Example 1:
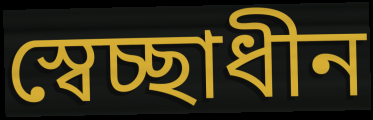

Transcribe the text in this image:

স্বেচ্ছাধীন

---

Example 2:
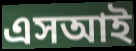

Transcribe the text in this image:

এসআই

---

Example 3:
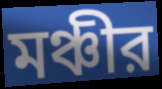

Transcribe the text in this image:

মঞ্চীর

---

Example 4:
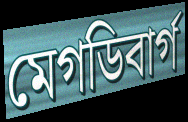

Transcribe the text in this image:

মেগডিবার্গ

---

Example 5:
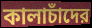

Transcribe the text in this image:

কালাচাঁদের